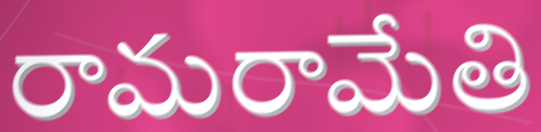
రామరామేతి